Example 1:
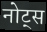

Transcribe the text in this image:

नोट्‌स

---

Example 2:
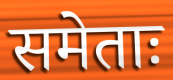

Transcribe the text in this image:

समेताः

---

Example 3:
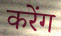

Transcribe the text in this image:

करेंग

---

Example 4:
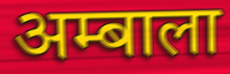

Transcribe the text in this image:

अम्‍बाला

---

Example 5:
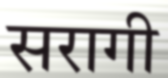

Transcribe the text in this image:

सरागी